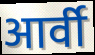
आर्वी